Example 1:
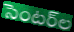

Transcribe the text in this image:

సెంటర్‌ల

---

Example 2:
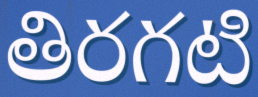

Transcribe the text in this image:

తిరగటి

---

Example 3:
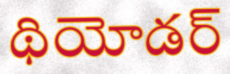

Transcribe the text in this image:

థియోడర్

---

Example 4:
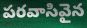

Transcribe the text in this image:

పరవాసివైన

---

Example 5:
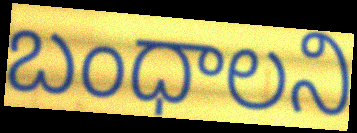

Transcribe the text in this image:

బంధాలని